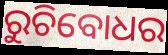
ରୁଚିବୋଧର